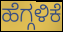
ಹೆಗ್ಗಳಿಕೆ